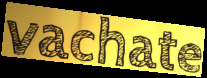
vachate